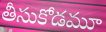
తీసుకోడమూ